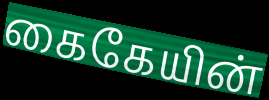
கைகேயின்